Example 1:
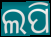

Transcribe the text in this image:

ଲପି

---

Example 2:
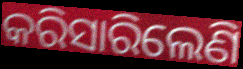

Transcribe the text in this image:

କରିସାରିଲେଣି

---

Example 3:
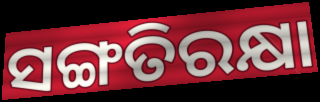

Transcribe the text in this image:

ସଙ୍ଗତିରକ୍ଷା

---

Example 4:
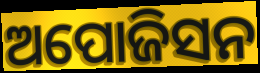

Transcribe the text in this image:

ଅପୋଜିସନ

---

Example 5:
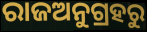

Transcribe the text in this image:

ରାଜଅନୁଗ୍ରହରୁ